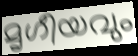
മൃഗീയവും